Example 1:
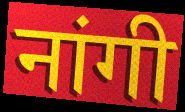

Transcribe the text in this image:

नांगी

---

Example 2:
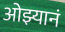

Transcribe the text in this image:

ओझ्यानं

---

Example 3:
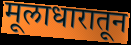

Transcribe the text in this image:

मूलाधारातून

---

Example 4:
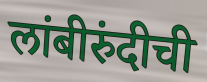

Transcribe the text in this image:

लांबीरुंदीची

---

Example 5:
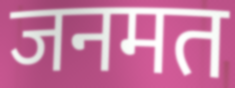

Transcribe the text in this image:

जनमत